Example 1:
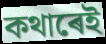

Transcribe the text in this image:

কথাৰেই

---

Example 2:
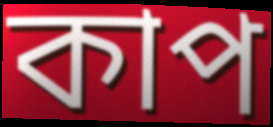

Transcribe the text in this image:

কাপ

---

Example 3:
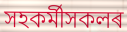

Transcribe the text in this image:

সহকৰ্মীসকলৰ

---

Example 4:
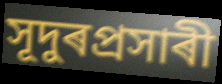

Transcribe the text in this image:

সূদুৰপ্ৰসাৰী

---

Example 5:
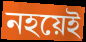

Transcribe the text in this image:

নহয়েই